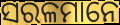
ସରଳମାନେ